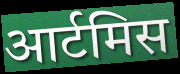
आर्टमिस